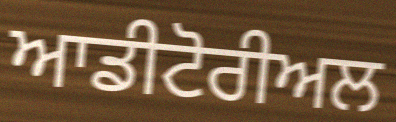
ਆਡੀਟੋਰੀਅਲ